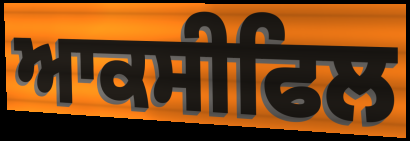
ਆਕਸੀਫਿਲ